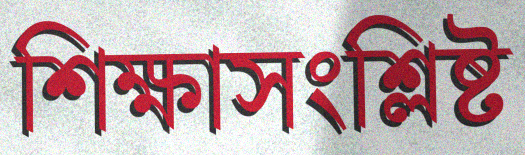
শিক্ষাসংশ্লিষ্ট